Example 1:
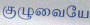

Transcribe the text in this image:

குழுவையே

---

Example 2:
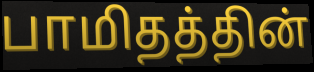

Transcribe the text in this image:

பாமிதத்தின்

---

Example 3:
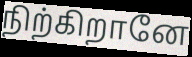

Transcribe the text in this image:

நிற்கிறானே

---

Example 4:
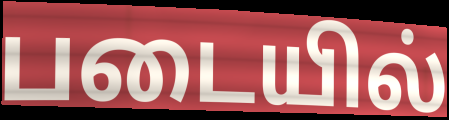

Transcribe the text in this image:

படையில்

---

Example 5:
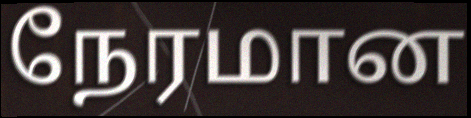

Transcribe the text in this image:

நேரமான